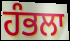
ਹੰਭਲਾ